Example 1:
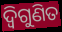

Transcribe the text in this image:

ଦ୍ଵିଗୁଣିତ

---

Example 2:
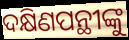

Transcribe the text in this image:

ଦକ୍ଷିଣପନ୍ଥୀଙ୍କୁ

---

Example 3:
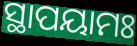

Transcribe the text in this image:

ସ୍ଥାପୟାମଃ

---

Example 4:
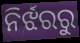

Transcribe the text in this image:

ନିର୍ଝରରୁ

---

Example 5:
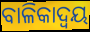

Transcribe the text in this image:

ବାଳିକାଦ୍ୱୟ